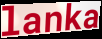
lanka